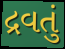
દ્રવતું